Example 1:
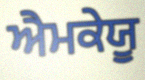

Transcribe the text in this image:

ਐਮਕੇਯੂ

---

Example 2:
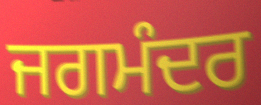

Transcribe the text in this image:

ਜਗਮੰਦਰ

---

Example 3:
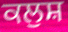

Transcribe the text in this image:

ਕਲੁਸ਼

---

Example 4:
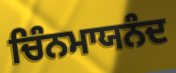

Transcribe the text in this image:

ਚਿੰਨਮਾਯਨੰਦ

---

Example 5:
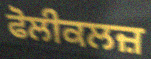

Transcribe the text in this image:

ਫੋਲੀਕਲਜ਼